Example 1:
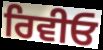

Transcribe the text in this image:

ਰਿਵੀਓ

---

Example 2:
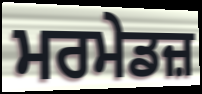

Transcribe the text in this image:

ਮਰਮੇਡਜ਼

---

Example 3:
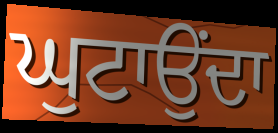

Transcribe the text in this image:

ਘੁਟਾਉਂਦਾ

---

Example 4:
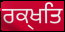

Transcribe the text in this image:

ਰਕ੍ਖਤਿ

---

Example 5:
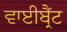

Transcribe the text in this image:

ਵਾਈਬ੍ਰੈਂਟ